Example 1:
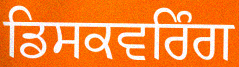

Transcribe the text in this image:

ਡਿਸਕਵਰਿੰਗ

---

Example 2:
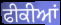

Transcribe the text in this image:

ਫੀਕੀਆਂ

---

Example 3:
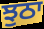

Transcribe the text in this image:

ਝੁਠਾ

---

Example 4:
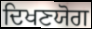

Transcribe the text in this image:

ਦਿਖਣਯੋਗ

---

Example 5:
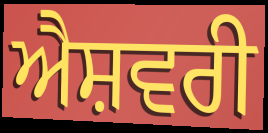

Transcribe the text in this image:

ਐਸ਼ਵਰੀ